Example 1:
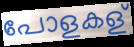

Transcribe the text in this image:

പോളകള്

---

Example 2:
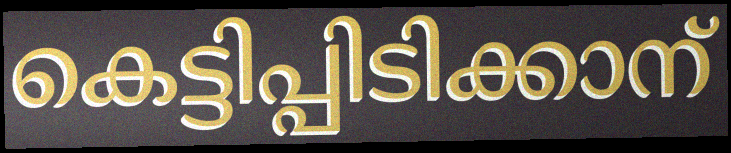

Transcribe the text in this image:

കെട്ടിപ്പിടിക്കാന്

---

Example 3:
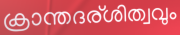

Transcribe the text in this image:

ക്രാന്തദര്ശിത്വവും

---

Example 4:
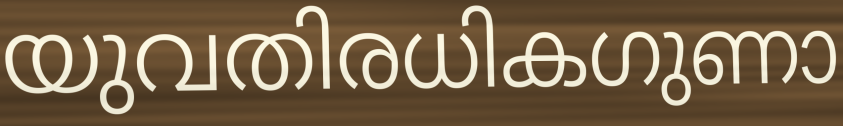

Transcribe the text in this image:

യുവതിരധികഗുണാ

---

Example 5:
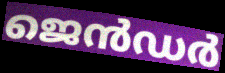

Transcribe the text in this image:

ജെൻഡർ